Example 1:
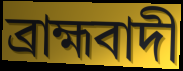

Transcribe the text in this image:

ব্ৰাহ্মবাদী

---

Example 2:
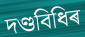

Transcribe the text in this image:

দণ্ডবিধিৰ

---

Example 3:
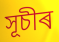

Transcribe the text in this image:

সূচীৰ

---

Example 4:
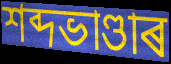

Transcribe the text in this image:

শব্দভাণ্ডাৰ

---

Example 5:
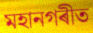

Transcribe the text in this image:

মহানগৰীত